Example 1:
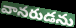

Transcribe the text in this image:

వానరుడను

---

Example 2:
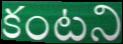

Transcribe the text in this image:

కంటని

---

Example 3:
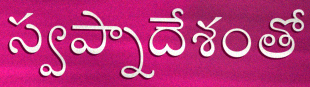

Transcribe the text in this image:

స్వప్నాదేశంతో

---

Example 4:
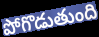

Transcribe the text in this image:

పోగొడుతుంది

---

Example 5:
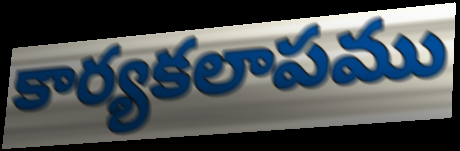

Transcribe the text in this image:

కార్యకలాపము